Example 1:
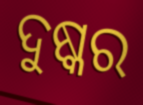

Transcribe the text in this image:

ଦୁଷ୍କର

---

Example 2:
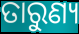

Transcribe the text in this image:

ତାରୁଣ୍ୟ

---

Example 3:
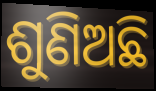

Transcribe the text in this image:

ଶୁଣିଅଛି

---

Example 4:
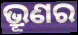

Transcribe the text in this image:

ଭ୍ରୂଣର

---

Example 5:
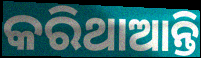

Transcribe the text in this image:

କରିଥାଆନ୍ତି